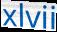
xlvii